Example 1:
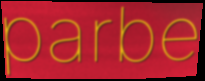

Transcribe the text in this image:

parbe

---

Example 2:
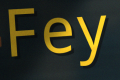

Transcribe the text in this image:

Fey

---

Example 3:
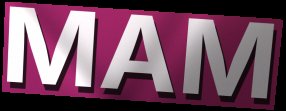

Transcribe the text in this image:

MAM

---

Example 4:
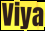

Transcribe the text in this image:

Viya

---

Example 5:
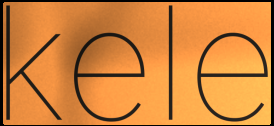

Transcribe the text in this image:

kele